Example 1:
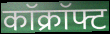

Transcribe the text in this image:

कॉक्रॉफ्ट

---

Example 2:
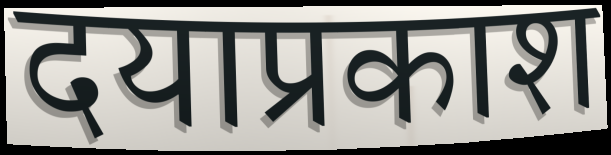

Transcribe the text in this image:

दयाप्रकाश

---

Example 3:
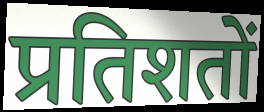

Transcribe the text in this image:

प्रतिशतों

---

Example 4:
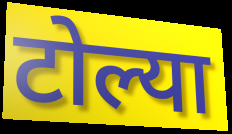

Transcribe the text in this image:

टोल्या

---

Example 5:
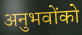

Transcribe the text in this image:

अनुभवोंको